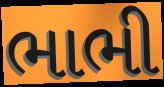
ભાભી